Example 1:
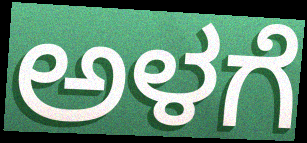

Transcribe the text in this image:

ಅಳಗೆ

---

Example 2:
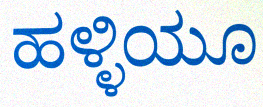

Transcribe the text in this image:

ಹಳ್ಳಿಯೂ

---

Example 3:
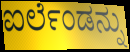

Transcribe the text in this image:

ಐರ್ಲೆಂಡನ್ನು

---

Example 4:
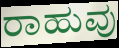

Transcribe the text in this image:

ರಾಹುವು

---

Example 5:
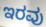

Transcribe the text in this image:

ಇರವು